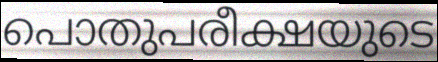
പൊതുപരീക്ഷയുടെ